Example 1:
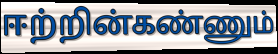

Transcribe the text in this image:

ஈற்றின்கண்ணும்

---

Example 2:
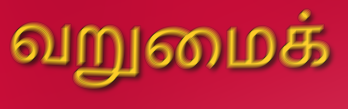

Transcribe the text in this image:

வறுமைக்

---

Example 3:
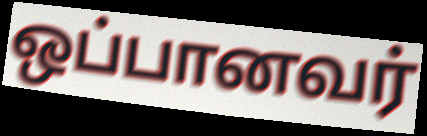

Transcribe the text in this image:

ஒப்பானவர்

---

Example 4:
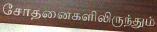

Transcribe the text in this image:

சோதனைகளிலிருந்தும்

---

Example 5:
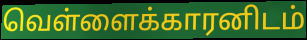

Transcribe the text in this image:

வெள்ளைக்காரனிடம்